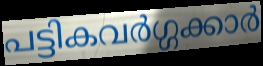
പട്ടികവർഗ്ഗക്കാർ